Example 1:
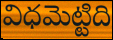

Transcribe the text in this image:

విధమెట్టిది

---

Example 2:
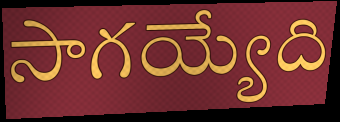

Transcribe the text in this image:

సాగయ్యేది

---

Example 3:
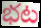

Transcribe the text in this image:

భట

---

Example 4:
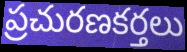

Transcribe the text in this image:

ప్రచురణకర్తలు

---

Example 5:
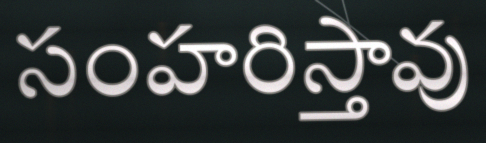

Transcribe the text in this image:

సంహరిస్తావు